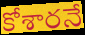
కోశారనే